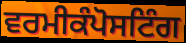
ਵਰਮੀਕੰਪੋਸਟਿੰਗ